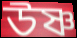
উষ্ণ